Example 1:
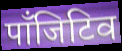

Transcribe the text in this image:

पाँजिटिव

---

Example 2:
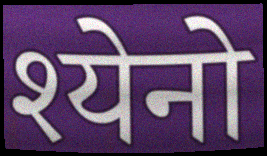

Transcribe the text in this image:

श्येनो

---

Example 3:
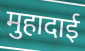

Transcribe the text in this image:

मुहादाई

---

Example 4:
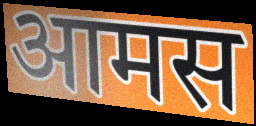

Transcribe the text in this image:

आमस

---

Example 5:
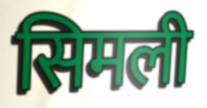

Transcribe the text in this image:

सिमली